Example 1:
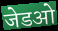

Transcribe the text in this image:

जेडओ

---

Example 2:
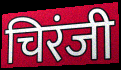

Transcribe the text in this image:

चिरंजी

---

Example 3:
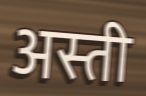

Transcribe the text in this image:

अस्ती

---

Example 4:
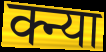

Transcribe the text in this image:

क्न्या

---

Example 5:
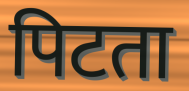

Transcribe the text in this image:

पिटता